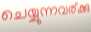
ചെയ്യുന്നവര്ക്കു